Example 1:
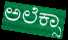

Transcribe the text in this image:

ಅಲೆಕ್ಸಾ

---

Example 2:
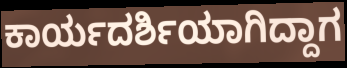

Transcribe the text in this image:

ಕಾರ್ಯದರ್ಶಿಯಾಗಿದ್ದಾಗ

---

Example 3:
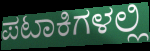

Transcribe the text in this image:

ಪಟಾಕಿಗಳಲ್ಲಿ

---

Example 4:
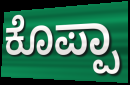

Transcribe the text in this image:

ಕೊಪ್ಪಾ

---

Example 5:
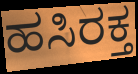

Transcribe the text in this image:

ಹಸಿರಕ್ತ